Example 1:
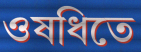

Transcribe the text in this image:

ওষধিতে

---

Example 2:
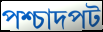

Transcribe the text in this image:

পশ্চাদপট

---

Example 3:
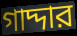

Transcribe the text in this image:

গাদ্দার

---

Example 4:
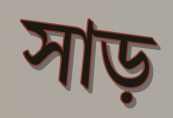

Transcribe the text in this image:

সাড়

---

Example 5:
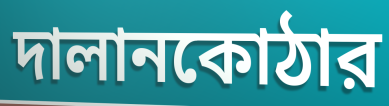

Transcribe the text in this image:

দালানকোঠার